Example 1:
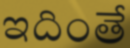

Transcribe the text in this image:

ఇదింతే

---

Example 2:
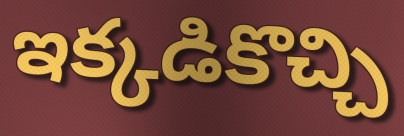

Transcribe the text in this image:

ఇక్కడికొచ్చి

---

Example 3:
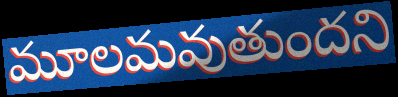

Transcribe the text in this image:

మూలమవుతుందని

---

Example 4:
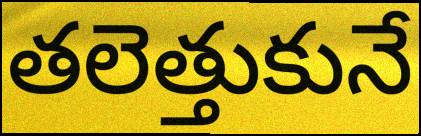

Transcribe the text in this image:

తలెత్తుకునే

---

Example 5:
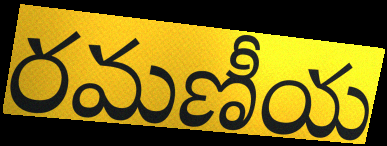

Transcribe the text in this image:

రమణీయ